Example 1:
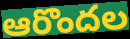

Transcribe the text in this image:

ఆరొందల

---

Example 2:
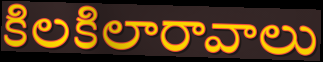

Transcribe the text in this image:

కిలకిలారావాలు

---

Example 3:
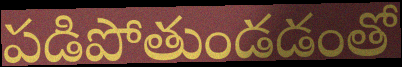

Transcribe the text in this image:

పడిపోతుండడంతో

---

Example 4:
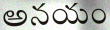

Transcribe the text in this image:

అనయం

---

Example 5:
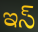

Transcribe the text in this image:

ఇస్